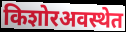
किशोरअवस्थेत